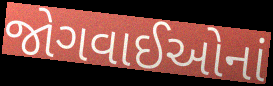
જોગવાઈઓનાં